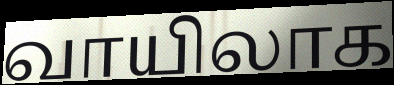
வாயிலாக